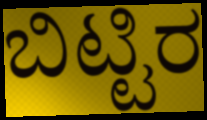
ಬಿಟ್ಟಿರ